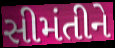
સીમંતીને